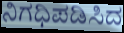
ನಿಗಧಿಪಡಿಸಿದ